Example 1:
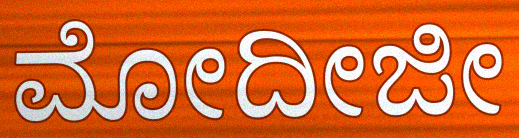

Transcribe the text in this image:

ಮೋದೀಜೀ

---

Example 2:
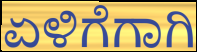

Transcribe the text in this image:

ಏಳಿಗೆಗಾಗಿ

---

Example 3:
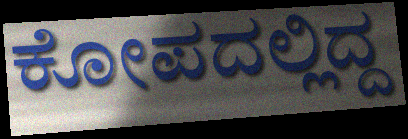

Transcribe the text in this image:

ಕೋಪದಲ್ಲಿದ್ದ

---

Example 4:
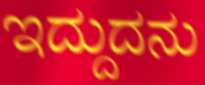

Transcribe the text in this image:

ಇದ್ದುದನು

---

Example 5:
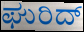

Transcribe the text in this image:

ಘುರಿದ್